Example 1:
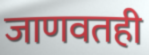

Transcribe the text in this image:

जाणवतही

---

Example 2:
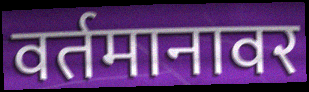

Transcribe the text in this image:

वर्तमानावर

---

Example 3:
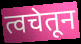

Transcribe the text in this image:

त्वचेतून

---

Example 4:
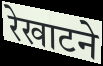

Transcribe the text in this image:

रेखाटने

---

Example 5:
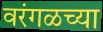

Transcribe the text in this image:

वरंगळच्या